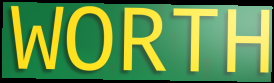
WORTH